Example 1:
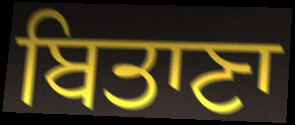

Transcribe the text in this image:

ਬਿਤਾਣਾ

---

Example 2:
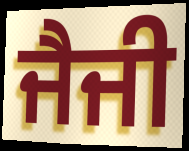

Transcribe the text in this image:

ਜੈਜੀ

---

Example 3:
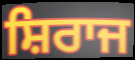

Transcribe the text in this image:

ਸ਼ਿਰਾਜ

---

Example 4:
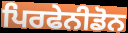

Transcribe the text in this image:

ਪਿਰਫੇਨੀਡੋਨ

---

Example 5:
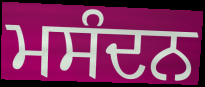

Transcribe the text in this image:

ਮਸੰਦਨ